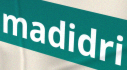
madidri